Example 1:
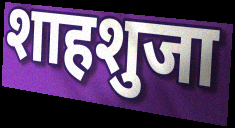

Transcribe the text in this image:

शाहशुजा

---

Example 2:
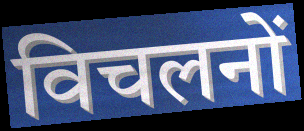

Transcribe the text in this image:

विचलनों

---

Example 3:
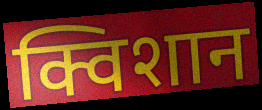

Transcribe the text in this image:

क्विशान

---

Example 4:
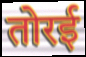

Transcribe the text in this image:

तोरई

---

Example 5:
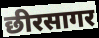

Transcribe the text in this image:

छीरसागर